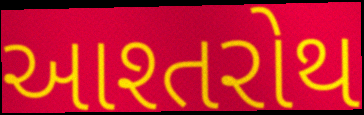
આશ્તરોથ